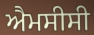
ਐਮਸੀਸੀ